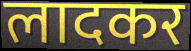
लादकर